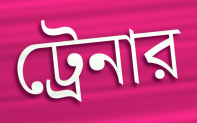
ট্রেনার